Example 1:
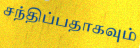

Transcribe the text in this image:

சந்திப்பதாகவும்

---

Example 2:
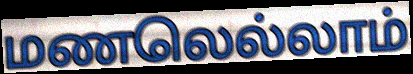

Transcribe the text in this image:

மணலெல்லாம்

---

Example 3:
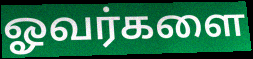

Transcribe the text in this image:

ஓவர்களை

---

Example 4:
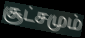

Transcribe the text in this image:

சூட்சமும்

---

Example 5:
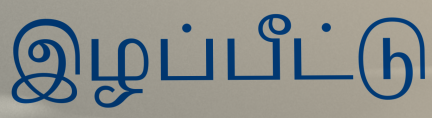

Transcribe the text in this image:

இழப்பீட்டு